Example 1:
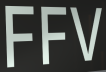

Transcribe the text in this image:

FFV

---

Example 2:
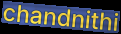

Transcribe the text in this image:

chandnithi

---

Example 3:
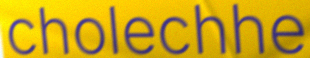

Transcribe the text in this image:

cholechhe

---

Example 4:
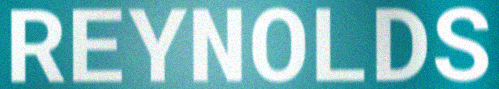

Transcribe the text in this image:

REYNOLDS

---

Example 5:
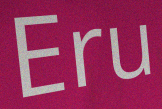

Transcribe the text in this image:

Eru